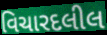
વિચારદલીલ